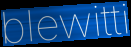
blewitti